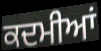
ਕਦਮੀਆਂ